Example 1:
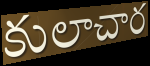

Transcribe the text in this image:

కులాచార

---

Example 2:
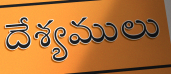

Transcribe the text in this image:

దేశ్యములు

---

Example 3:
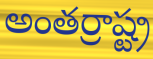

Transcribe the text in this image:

అంతర్రాష్ట్ర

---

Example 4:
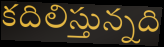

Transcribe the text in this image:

కదిలిస్తున్నది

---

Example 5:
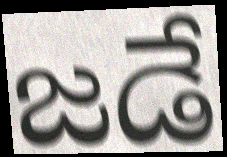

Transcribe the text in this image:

జడే